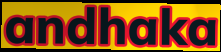
andhaka